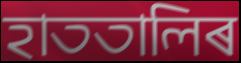
হাততালিৰ